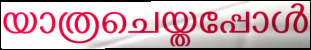
യാത്രചെയ്തപ്പോൾ